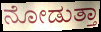
ನೋಡುತ್ತಾ